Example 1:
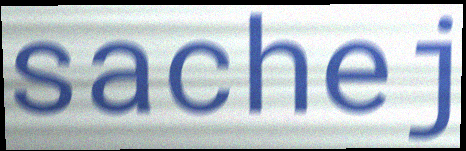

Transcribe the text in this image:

sachej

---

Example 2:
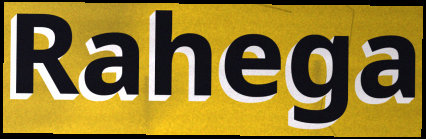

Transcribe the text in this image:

Rahega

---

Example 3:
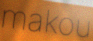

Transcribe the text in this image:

makou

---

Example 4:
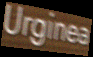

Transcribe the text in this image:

Urginea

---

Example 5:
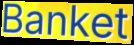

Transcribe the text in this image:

Banket